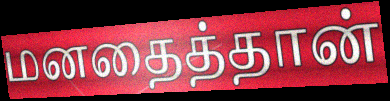
மனதைத்தான்